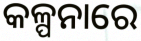
କଳ୍ପନାରେ